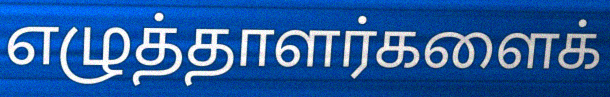
எழுத்தாளர்களைக்